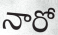
నారో